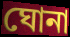
ঘোনা